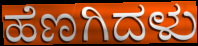
ಹೆಣಗಿದಳು